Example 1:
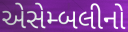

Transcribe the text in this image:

એસેમ્બલીનો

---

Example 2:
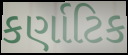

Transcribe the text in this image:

કર્ણાટિક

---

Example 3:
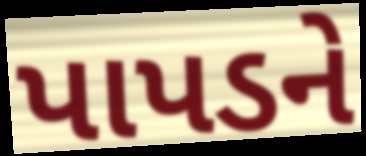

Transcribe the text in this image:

પાપડને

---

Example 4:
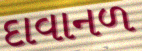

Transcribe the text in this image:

દાવાનળ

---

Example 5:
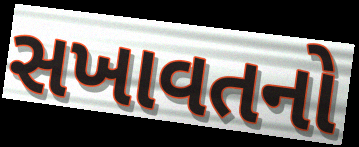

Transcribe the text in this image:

સખાવતનો